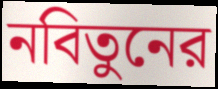
নবিতুনের